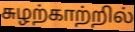
சுழற்காற்றில்